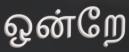
ஒன்றே